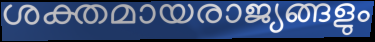
ശക്തമായരാജ്യങ്ങളും